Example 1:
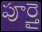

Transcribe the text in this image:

పూర్తై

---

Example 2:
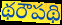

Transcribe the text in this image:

థరౌపథి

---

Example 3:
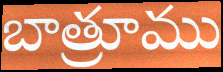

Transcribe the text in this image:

బాత్రూము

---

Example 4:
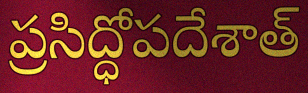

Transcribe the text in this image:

ప్రసిద్ధోపదేశాత్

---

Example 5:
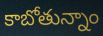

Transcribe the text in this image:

కాబోతున్నాం